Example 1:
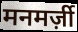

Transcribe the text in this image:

मनमर्ज़ी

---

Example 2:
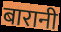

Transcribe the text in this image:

बारानी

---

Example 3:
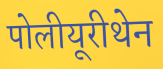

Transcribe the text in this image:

पोलीयूरीथेन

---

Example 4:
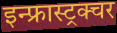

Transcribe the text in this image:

इन्फ्रास्ट्रक्चर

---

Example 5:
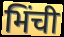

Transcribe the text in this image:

भिंची